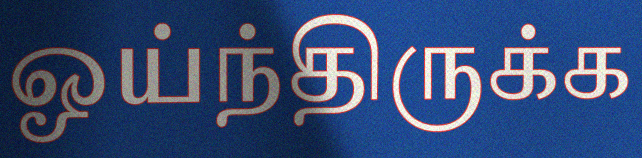
ஓய்ந்திருக்க